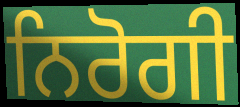
ਨਿਰੋਗੀ